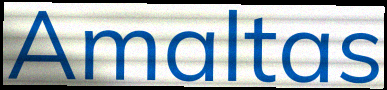
Amaltas